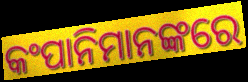
କଂପାନିମାନଙ୍କରେ